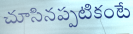
చూసినప్పటికంటే